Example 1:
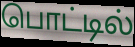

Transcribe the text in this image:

பொட்டில்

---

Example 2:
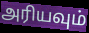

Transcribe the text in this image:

அரியவும்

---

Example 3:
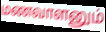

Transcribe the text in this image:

மணவாளனும்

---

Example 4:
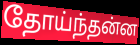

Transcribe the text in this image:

தோய்ந்தன்ன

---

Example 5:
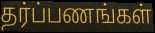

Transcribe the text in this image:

தர்ப்பணங்கள்